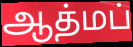
ஆத்மப்